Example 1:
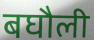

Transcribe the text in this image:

बघौली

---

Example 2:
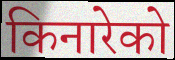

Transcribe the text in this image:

किनारेको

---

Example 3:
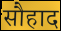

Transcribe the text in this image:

सौहाद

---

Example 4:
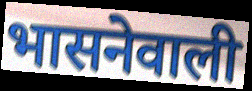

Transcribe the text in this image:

भासनेवाली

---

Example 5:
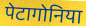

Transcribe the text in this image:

पेटागोनिया